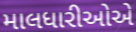
માલધારીઓએ